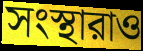
সংস্থারাও